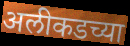
अलीकडच्या